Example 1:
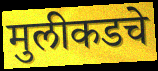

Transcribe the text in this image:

मुलीकडचे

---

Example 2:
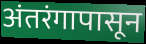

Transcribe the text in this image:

अंतरंगापासून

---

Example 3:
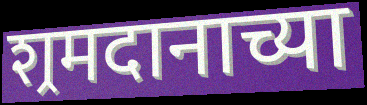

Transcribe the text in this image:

श्रमदानाच्या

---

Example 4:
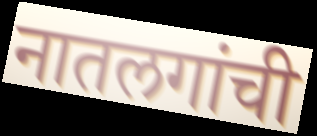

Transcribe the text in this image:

नातलगांची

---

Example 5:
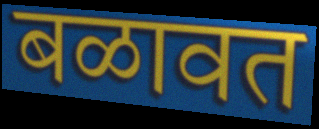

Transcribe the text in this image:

बळावत